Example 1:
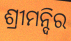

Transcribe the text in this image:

ଶ୍ରୀମନ୍ଦିର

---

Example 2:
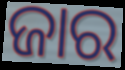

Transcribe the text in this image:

ଜାର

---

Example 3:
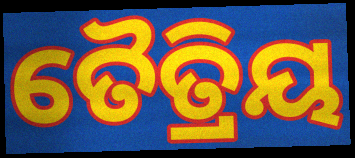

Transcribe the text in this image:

ତୈତ୍ରିୟ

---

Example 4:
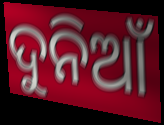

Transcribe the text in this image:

ଦୁନିଆଁ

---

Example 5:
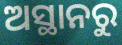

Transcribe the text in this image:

ଅସ୍ଥାନରୁ